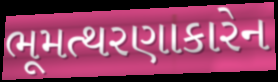
ભૂમત્થરણાકારેન